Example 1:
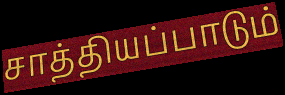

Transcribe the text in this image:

சாத்தியப்பாடும்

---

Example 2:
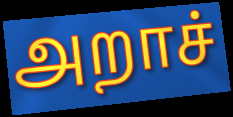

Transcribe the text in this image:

அறாச்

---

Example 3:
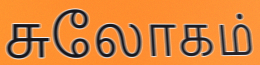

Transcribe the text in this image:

சுலோகம்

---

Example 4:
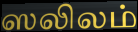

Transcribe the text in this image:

ஸலிலம்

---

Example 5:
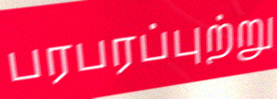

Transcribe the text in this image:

பரபரப்புற்று